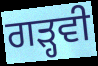
ਗੜ੍ਹਵੀ